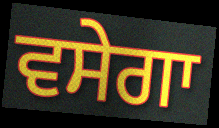
ਵਸੇਗਾ